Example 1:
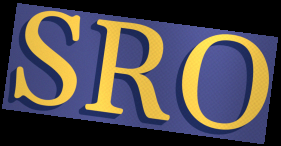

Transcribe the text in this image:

SRO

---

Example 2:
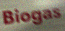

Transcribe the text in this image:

Biogas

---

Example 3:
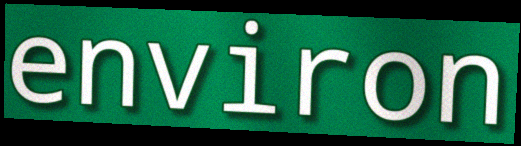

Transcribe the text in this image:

environ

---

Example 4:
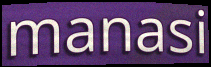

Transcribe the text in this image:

manasi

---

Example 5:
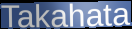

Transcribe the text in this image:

Takahata